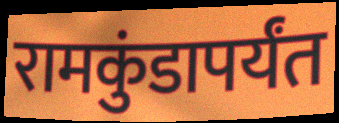
रामकुंडापर्यंत